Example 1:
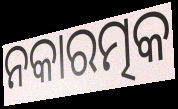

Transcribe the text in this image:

ନକାରତ୍ମକ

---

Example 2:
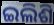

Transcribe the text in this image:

ଇଲିଶି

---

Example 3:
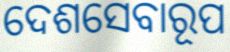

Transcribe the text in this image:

ଦେଶସେବାରୂପ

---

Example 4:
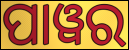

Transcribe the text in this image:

ପାୱର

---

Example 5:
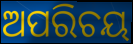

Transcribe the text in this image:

ଅପରିଚୟ